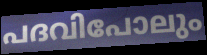
പദവിപോലും